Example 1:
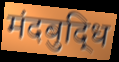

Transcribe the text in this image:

मंदबुद्धि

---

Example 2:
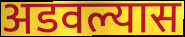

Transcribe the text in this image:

अडवल्यास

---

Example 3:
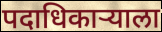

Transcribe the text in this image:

पदाधिकाऱ्याला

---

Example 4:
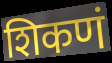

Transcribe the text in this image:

शिकणं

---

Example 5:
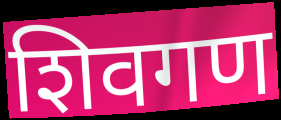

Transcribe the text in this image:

शिवगण